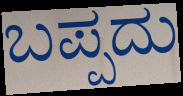
ಬಪ್ಪದು